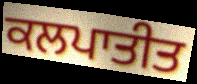
ਕਲਪਾਤੀਤ